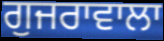
ਗੁਜਰਾਵਾਲਾ